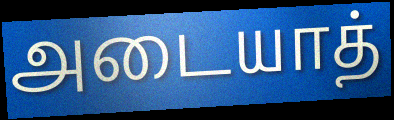
அடையாத்